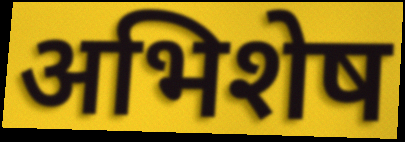
अभिशेष